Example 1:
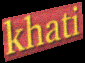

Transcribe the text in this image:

khati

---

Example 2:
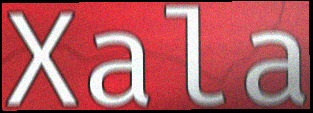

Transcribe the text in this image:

Xala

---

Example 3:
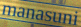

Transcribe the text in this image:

manasuni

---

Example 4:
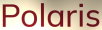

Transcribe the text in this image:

Polaris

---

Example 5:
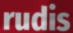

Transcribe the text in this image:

rudis